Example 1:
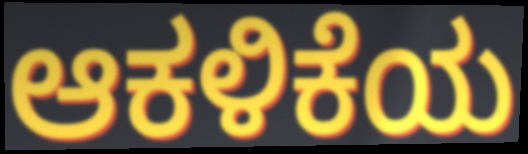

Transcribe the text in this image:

ಆಕಳಿಕೆಯ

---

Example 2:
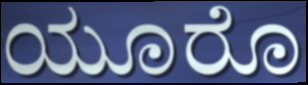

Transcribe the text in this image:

ಯೂರೊ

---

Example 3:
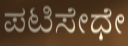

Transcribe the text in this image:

ಪಟಿಸೇಧೇ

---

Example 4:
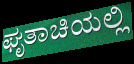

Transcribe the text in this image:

ಘೃತಾಚಿಯಲ್ಲಿ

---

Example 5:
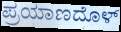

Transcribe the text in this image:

ಪ್ರಯಾಣದೊಳ್